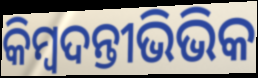
କିମ୍ବଦନ୍ତୀଭିଭିକ